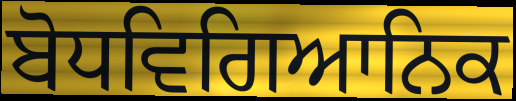
ਬੋਧਵਿਗਿਆਨਿਕ